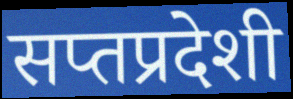
सप्तप्रदेशी